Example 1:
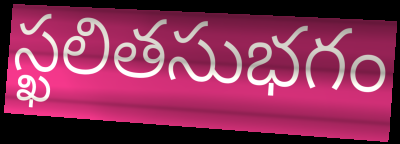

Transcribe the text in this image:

స్ఖలితసుభగం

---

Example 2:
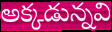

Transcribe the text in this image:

అక్కడున్నవి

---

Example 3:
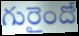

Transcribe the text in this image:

గురైందో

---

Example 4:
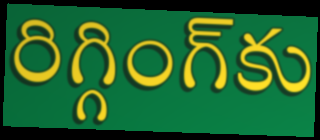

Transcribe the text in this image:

రిగ్గింగ్‌కు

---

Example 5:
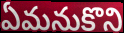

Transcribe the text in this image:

ఏమనుకొని